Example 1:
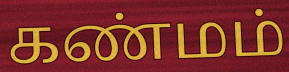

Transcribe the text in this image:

கண்மம்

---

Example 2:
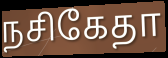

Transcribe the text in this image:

நசிகேதா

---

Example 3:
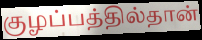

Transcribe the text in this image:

குழப்பத்தில்தான்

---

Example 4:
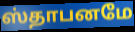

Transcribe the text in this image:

ஸ்தாபனமே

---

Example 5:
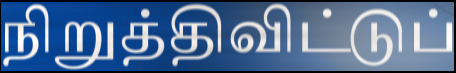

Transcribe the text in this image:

நிறுத்திவிட்டுப்